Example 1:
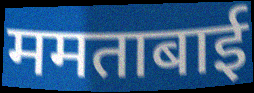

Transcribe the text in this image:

ममताबाई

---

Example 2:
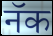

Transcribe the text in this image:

नॅक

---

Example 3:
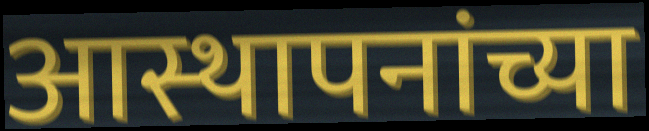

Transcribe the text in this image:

आस्थापनांच्या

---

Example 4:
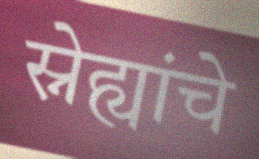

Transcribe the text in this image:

स्नेह्यांचे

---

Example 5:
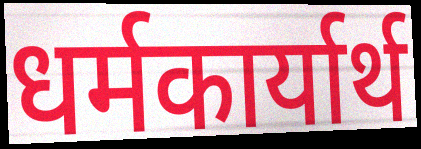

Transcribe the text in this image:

धर्मकार्यार्थ